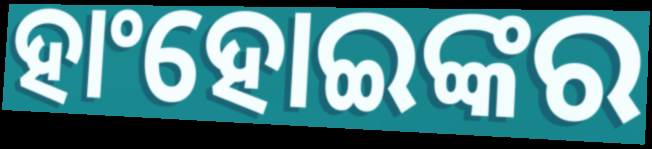
ହାଂହୋଇଙ୍କର